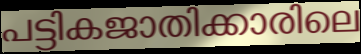
പട്ടികജാതിക്കാരിലെ